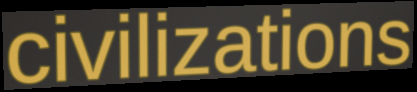
civilizations